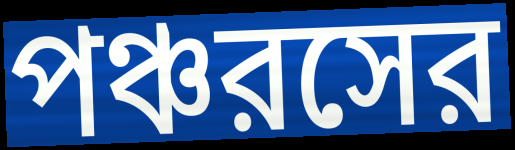
পঞ্চরসের